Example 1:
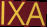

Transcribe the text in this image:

IXA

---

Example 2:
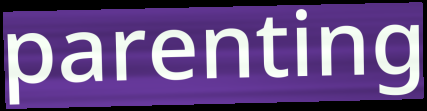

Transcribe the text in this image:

parenting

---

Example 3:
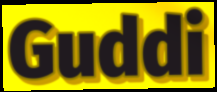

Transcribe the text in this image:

Guddi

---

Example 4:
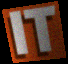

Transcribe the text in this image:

IT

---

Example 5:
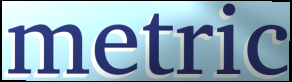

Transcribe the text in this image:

metric